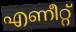
എണീറ്റ്